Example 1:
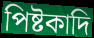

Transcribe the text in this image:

পিষ্টকাদি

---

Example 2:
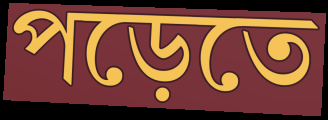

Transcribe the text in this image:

পড়েতে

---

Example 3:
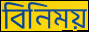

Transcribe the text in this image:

বিনিময়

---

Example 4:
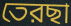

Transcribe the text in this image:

তেরছা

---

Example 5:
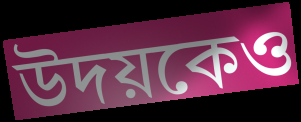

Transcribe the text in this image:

উদয়কেও